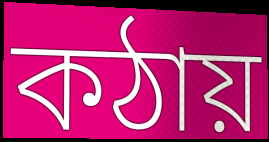
কঠায়